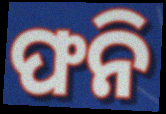
ଫନି